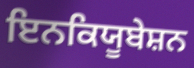
ਇਨਕਿਯੂਬੇਸ਼ਨ